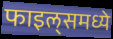
फाइल्समध्ये